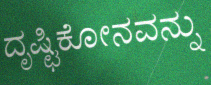
ದೃಷ್ಟಿಕೋನವನ್ನು